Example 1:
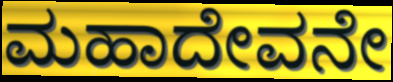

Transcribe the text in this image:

ಮಹಾದೇವನೇ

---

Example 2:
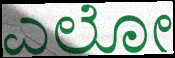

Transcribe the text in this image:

ಎಲೋ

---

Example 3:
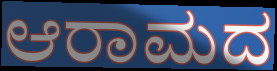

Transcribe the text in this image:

ಆರಾಮದ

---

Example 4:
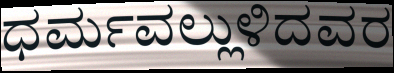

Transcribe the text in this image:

ಧರ್ಮವಲ್ಲುಳಿದವರ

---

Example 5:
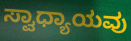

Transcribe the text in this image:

ಸ್ವಾಧ್ಯಾಯವು